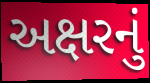
અક્ષરનું